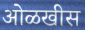
ओळखीस